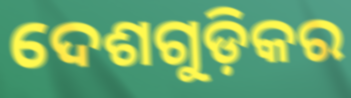
ଦେଶଗୁଡ଼ିକର